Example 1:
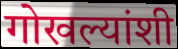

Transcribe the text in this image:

गोखल्यांशी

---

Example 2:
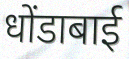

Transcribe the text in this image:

धोंडाबाई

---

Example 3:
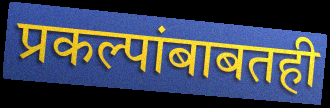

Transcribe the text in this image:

प्रकल्पांबाबतही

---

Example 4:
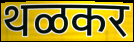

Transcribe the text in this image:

थळकर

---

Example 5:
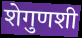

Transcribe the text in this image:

शेगुणशी